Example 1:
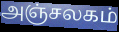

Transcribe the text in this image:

அஞ்சலகம்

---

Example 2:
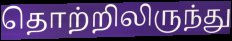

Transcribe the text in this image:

தொற்றிலிருந்து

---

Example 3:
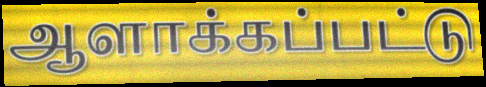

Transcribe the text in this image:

ஆளாக்கப்பட்டு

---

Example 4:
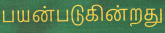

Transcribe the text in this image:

பயன்படுகின்றது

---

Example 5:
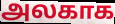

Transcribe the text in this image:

அலகாக